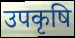
उपकृषि